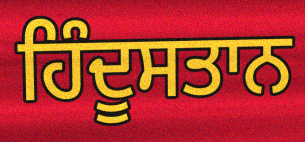
ਹਿੰਦੂਸਤਾਨ